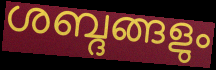
ശബ്ദങ്ങളും